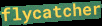
flycatcher